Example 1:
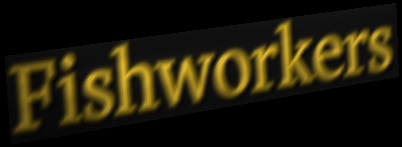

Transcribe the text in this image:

Fishworkers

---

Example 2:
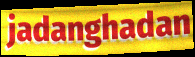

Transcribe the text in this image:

jadanghadan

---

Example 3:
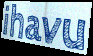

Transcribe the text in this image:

ihavu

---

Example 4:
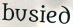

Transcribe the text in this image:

busied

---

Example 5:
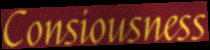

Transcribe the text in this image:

Consiousness